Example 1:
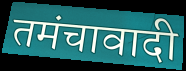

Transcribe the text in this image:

तमंचावादी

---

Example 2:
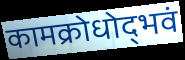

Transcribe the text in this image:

कामक्रोधोद्भवं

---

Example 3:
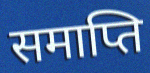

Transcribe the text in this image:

समाप्ति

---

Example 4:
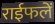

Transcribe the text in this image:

राईफलें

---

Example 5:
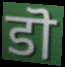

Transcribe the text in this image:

डॊ